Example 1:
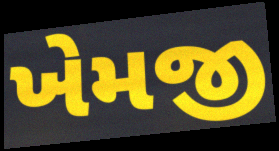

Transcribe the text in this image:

ખેમજી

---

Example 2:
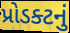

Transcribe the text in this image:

પ્રોડક્ટનું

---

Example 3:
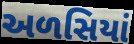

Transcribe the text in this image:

અળસિયાં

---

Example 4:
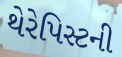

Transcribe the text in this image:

થેરેપિસ્ટની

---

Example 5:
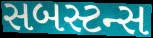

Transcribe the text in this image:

સબસ્ટન્સ